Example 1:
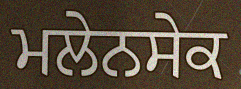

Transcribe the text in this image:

ਮਲੇਨਸੇਕ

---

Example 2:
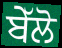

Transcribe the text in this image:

ਬੇੱਲੋ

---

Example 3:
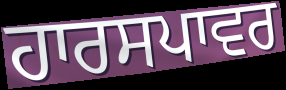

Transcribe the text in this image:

ਹਾਰਸਪਾਵਰ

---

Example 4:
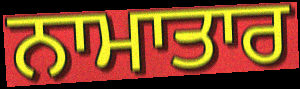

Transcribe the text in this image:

ਨਾਮਾਤਾਰ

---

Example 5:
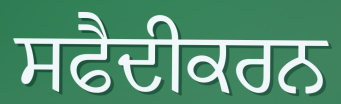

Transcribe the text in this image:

ਸਫੈਦੀਕਰਨ